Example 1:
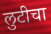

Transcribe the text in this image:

लुटीचा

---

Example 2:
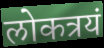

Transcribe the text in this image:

लोकत्रयं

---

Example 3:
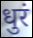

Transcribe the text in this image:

धुरं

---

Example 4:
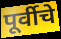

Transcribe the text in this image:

पूर्वीचे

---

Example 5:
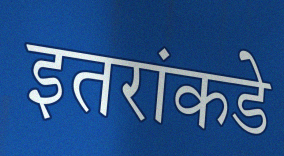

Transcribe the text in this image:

इतरांकडे